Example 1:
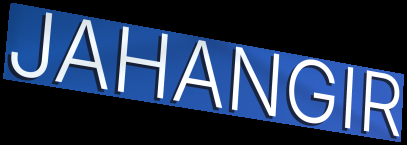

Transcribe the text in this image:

JAHANGIR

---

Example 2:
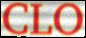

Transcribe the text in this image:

CLO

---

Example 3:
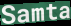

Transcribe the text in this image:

Samta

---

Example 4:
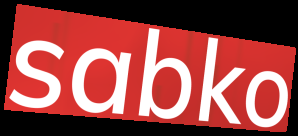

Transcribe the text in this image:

sabko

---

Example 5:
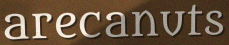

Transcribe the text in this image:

arecanuts